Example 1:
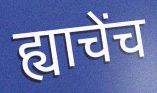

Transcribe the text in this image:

ह्याचेंच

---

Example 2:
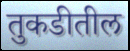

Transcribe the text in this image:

तुकडीतील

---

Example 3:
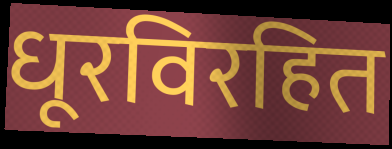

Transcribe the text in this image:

धूरविरहित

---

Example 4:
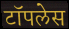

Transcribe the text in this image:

टॉपलेस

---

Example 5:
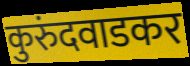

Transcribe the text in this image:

कुरुंदवाडकर